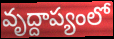
వృద్దాప్యంలో